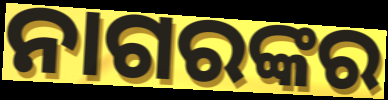
ନାଗରଙ୍କର